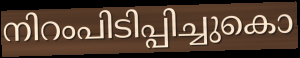
നിറംപിടിപ്പിച്ചുകൊ